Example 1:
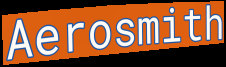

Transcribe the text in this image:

Aerosmith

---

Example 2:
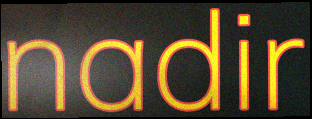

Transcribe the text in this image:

nadir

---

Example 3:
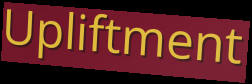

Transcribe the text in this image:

Upliftment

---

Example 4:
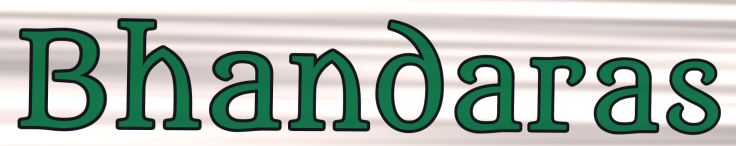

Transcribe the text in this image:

Bhandaras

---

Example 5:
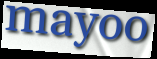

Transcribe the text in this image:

mayoo